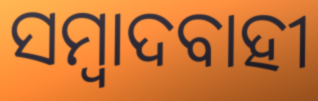
ସମ୍ବାଦବାହୀ